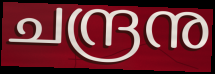
ചന്ദ്രനു